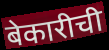
बेकारीची